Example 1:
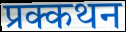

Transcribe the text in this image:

प्रक्कथन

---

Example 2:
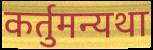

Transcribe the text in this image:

कर्तुमन्यथा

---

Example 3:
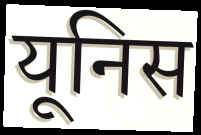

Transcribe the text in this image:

यूनिस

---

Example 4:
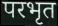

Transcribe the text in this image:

परभृत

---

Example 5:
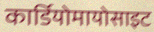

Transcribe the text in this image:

कार्डियोमायोसाइट